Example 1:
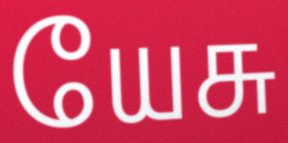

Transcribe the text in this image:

யேசு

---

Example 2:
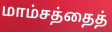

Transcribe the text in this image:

மாம்சத்தைத்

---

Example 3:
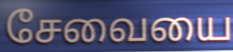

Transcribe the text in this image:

சேவையை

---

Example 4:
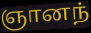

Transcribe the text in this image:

ஞானந்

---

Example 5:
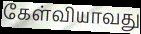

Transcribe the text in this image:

கேள்வியாவது